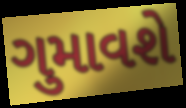
ગુમાવશે